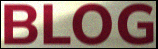
BLOG